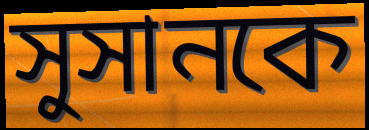
সুসানকে